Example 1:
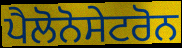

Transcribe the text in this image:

ਪੈਲੋਨੋਸੇਟਰੋਨ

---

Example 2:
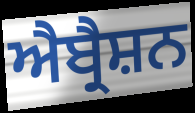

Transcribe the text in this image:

ਐਬ੍ਰੈਸ਼ਨ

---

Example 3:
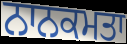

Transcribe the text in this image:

ਨਾਨਕਮਤਾ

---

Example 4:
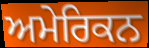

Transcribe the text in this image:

ਅਮੇਰਿਕਨ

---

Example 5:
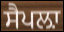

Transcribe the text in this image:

ਸੈਪਲ਼ਾ